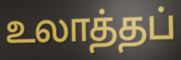
உலாத்தப்